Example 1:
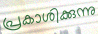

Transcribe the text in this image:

പ്രകാശിക്കുന്നു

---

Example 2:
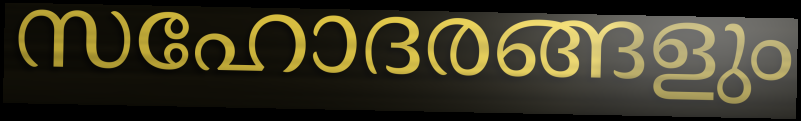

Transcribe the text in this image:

സഹോദരങ്ങളും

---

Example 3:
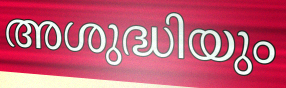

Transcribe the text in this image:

അശുദ്ധിയും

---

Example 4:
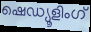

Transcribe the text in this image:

ഷെഡ്യൂളിംഗ്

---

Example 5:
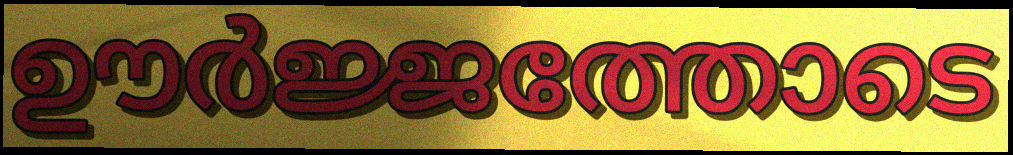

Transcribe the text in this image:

ഊർജ്ജത്തോടെ